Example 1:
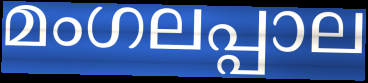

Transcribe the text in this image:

മംഗലപ്പാല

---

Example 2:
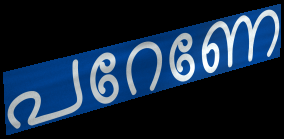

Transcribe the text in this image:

പറേണേ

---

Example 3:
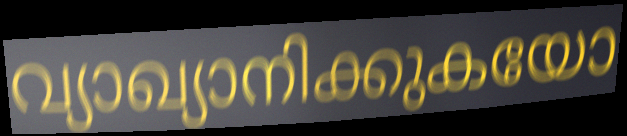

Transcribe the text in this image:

വ്യാഖ്യാനിക്കുകയോ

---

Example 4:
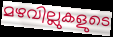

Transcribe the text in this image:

മഴവില്ലുകളുടെ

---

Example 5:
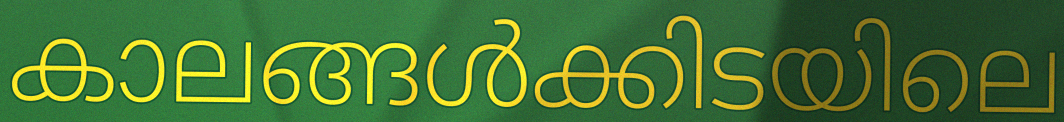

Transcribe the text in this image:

കാലങ്ങൾക്കിടയിലെ